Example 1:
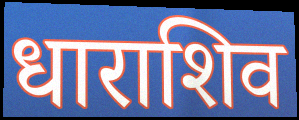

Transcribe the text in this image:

धाराशिव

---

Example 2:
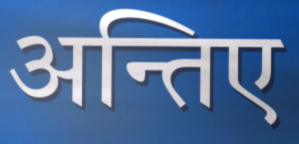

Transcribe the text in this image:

अन्तिए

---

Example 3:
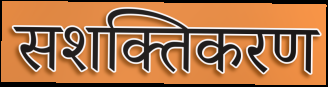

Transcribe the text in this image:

सशक्तिकरण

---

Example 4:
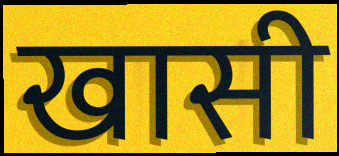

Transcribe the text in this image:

खासी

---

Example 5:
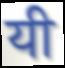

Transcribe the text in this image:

यी